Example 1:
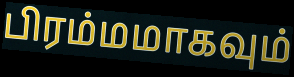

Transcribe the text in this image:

பிரம்மமாகவும்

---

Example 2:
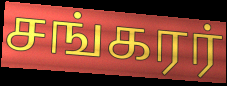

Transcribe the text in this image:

சங்கரர்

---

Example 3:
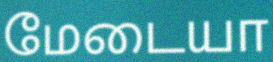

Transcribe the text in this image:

மேடையா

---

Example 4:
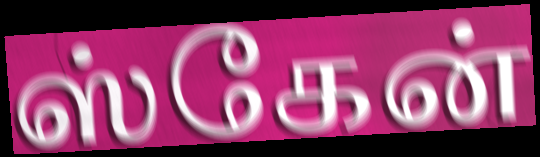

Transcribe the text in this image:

ஸ்கேன்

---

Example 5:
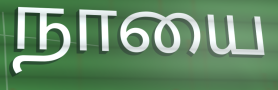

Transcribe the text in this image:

நாயை